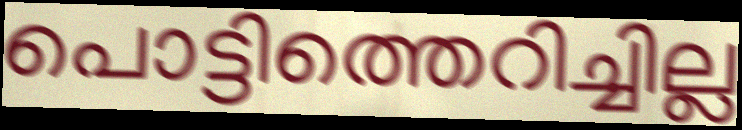
പൊട്ടിത്തെറിച്ചില്ല